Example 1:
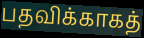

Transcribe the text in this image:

பதவிக்காகத்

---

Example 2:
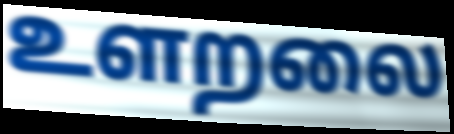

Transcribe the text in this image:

உளறலை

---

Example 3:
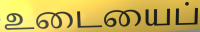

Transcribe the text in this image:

உடையைப்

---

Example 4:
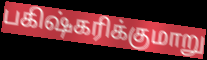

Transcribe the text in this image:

பகிஷ்கரிக்குமாறு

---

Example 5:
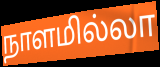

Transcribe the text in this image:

நாளமில்லா